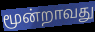
மூன்றாவது